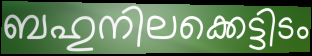
ബഹുനിലക്കെട്ടിടം